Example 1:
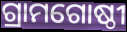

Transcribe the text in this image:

ଗ୍ରାମଗୋଷ୍ଠୀ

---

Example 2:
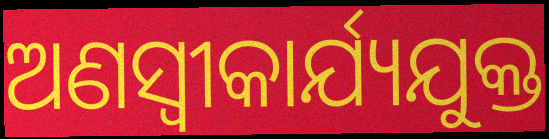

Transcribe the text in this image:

ଅଣସ୍ବୀକାର୍ଯ୍ୟଯୁକ୍ତ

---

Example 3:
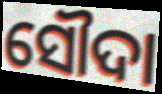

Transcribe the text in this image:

ସୌଦା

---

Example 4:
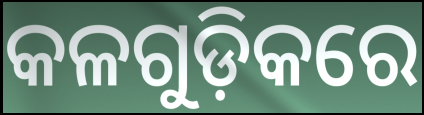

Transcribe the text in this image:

କଳଗୁଡ଼ିକରେ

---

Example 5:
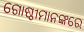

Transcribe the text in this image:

ଗୋଷ୍ଠୀମାନଙ୍କରେ